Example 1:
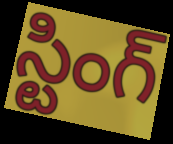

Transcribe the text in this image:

స్టింగ్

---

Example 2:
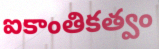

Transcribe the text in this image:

ఐకాంతికత్వం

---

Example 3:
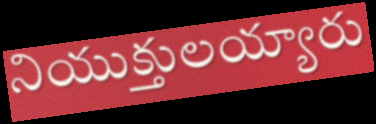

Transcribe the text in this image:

నియుక్తులయ్యారు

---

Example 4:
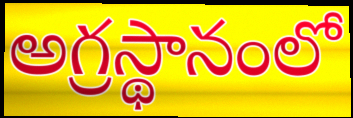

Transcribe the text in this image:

అగ్రస్థానంలో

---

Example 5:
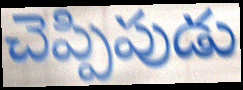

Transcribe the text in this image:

చెప్పిపుడు